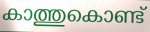
കാത്തുകൊണ്ട്